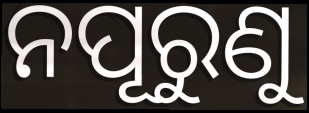
ନପୂରୁଣୁ